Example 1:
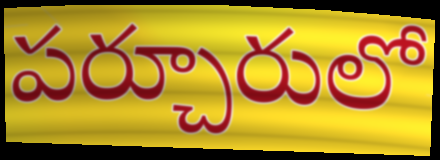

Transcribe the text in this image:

పర్చూరులో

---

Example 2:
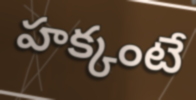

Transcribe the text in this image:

హక్కంటే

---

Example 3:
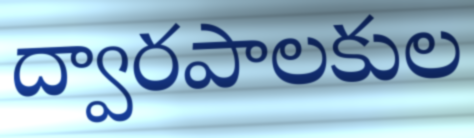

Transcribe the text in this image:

ద్వారపాలకుల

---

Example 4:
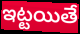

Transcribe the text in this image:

ఇట్టయితే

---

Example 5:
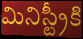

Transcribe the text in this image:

మినిస్ట్రీకి